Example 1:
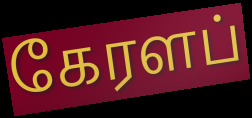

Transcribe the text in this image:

கேரளப்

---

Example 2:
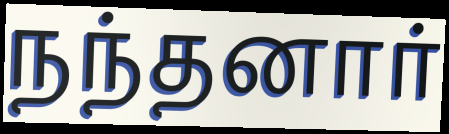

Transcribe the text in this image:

நந்தனார்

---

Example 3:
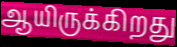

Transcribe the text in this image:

ஆயிருக்கிறது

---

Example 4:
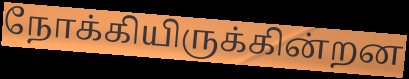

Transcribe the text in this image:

நோக்கியிருக்கின்றன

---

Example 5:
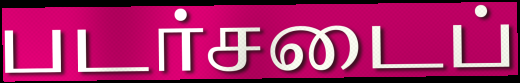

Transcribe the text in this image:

படர்சடைப்